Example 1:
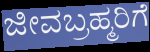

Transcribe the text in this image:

ಜೀವಬ್ರಹ್ಮರಿಗೆ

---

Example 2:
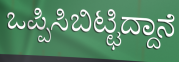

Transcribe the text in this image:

ಒಪ್ಪಿಸಿಬಿಟ್ಟಿದ್ದಾನೆ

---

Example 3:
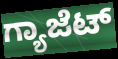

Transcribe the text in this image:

ಗ್ಯಾಜೆಟ್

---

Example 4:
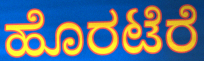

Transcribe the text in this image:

ಹೊರಟೆರೆ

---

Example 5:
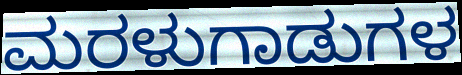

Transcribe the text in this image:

ಮರಳುಗಾಡುಗಳ